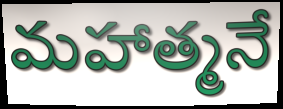
మహాత్మనే